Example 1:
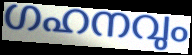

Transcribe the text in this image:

ഗഹനവും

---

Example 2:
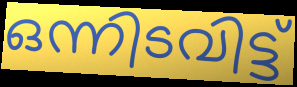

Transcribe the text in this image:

ഒന്നിടവിട്ട്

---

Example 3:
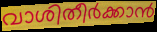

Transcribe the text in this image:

വാശിതീർക്കാൻ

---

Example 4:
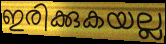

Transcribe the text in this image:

ഇരിക്കുകയല്ല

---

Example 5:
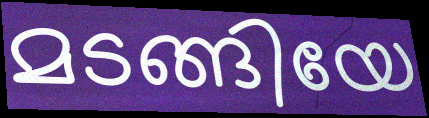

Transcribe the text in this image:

മടങ്ങിയേ